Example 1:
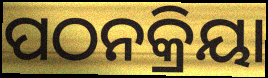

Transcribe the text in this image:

ପଠନକ୍ରିୟା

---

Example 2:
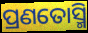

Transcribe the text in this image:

ପ୍ରଣତୋସ୍ମି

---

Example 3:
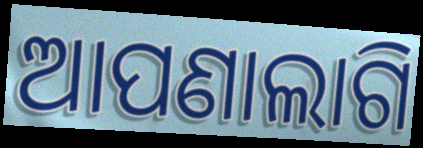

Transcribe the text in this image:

ଆପଣାଲାଗି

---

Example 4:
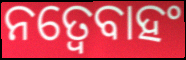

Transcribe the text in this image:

ନତ୍ୱେବାହଂ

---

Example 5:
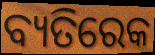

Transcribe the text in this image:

ବ୍ୟତିରେକ